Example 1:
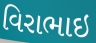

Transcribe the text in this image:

વિરાભાઇ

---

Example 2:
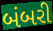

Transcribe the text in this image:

બંબરી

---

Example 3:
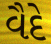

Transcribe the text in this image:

વૈદે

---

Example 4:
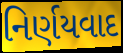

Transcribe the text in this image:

નિર્ણયવાદ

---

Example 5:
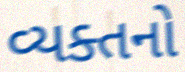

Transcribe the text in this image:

વ્યક્તનો